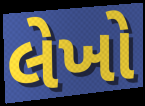
લેખો